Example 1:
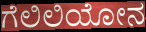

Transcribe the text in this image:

ಗೆಲಿಲಿಯೋನ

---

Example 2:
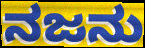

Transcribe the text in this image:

ನಜನು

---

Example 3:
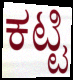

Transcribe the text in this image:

ಕಟ್ಟಿ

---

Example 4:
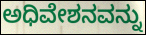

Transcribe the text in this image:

ಅಧಿವೇಶನವನ್ನು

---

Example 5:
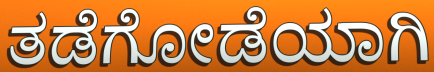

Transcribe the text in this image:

ತಡೆಗೋಡೆಯಾಗಿ